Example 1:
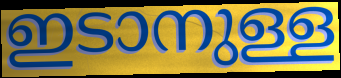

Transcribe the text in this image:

ഇടാനുള്ള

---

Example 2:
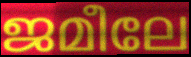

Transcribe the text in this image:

ജമീലേ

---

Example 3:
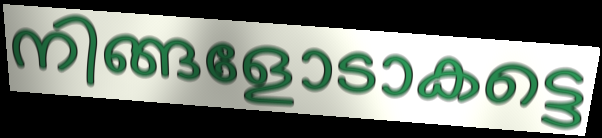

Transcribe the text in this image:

നിങ്ങളോടാകട്ടെ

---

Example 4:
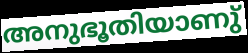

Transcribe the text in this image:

അനുഭൂതിയാണു്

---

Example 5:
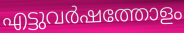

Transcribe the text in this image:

എട്ടുവർഷത്തോളം